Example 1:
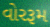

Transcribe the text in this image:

વોરરૂમ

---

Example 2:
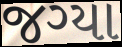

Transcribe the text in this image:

જગ્યા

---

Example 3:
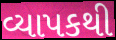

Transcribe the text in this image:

વ્યાપકથી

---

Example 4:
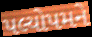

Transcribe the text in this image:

પલ્યોપમને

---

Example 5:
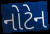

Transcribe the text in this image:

નોટેન